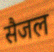
सैजल